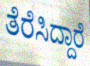
ತೆರೆಸಿದ್ದಾರೆ